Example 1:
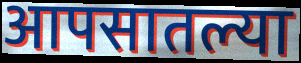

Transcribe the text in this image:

आपसातल्या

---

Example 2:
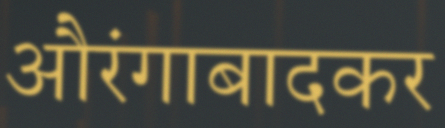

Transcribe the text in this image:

औरंगाबादकर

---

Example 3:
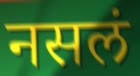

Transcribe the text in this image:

नसलं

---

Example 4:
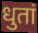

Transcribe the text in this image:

धुतां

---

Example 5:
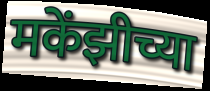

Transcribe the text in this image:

मकेंझीच्या